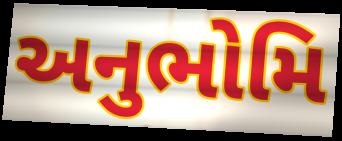
અનુભોમિ